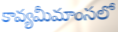
కావ్యమీమాంసలో